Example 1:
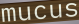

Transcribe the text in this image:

mucus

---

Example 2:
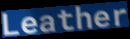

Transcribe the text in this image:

Leather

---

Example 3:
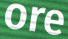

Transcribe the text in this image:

ore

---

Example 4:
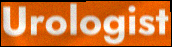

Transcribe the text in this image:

Urologist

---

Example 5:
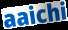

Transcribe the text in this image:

aaichi